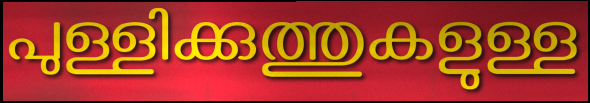
പുള്ളിക്കുത്തുകളുള്ള